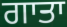
ਗਾਤਾ